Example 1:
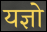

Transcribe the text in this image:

यज्ञो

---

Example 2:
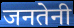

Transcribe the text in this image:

जनतेनी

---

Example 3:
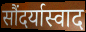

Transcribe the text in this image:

सौंदर्यास्वाद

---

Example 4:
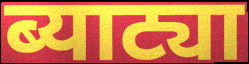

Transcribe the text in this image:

ब्याट्या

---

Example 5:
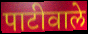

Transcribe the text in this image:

पाटीवाले